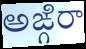
అఙ్గిరా